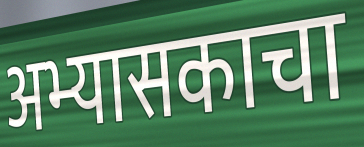
अभ्यासकाचा